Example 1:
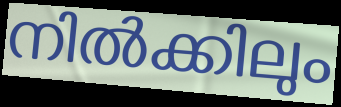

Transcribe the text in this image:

നിൽക്കിലും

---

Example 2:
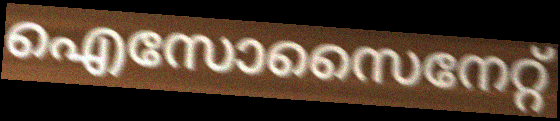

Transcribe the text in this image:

ഐസോസൈനേറ്റ്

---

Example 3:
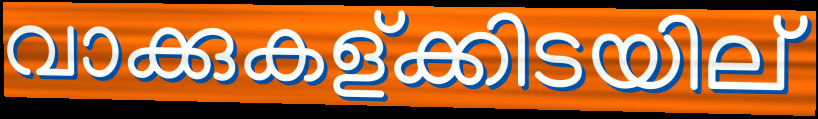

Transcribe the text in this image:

വാക്കുകള്ക്കിടയില്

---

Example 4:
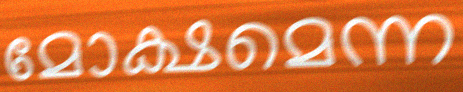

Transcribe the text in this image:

മോക്ഷമെന്ന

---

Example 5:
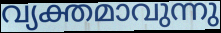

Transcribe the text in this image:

വ്യക്തമാവുന്നു